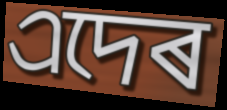
এদেৰ